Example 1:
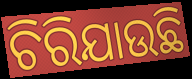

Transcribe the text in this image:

ଚିରିଯାଉଛି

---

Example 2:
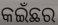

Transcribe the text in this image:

କଇଁଛର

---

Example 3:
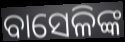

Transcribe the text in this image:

ବାସେଳିଙ୍କ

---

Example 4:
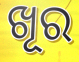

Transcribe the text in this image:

ଖୂର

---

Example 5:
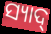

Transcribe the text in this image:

ସ୍ୟାଦ୍